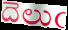
దెలుఁ